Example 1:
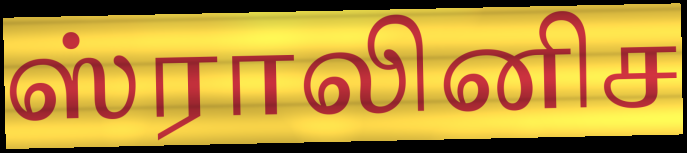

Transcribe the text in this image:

ஸ்ராலினிச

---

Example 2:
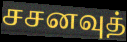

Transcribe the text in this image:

சசனவுத்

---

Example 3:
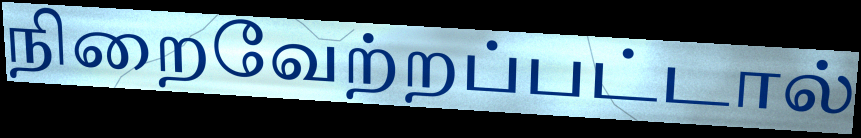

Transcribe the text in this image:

நிறைவேற்றப்பட்டால்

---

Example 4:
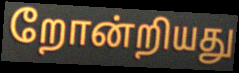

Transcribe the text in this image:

றோன்றியது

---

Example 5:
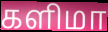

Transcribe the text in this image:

களிமா